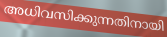
അധിവസിക്കുന്നതിനായി